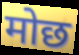
मोछ